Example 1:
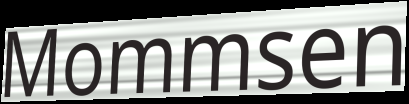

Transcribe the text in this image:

Mommsen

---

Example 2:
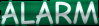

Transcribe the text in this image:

ALARM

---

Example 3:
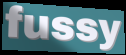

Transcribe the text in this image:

fussy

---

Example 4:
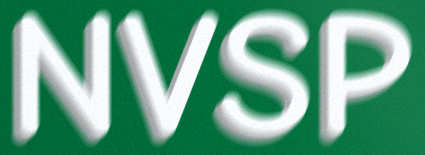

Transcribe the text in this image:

NVSP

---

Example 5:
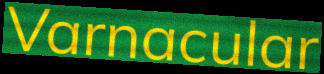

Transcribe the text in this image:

Varnacular